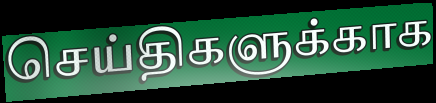
செய்திகளுக்காக